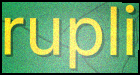
rupli